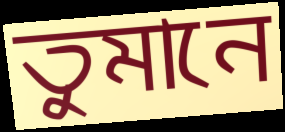
তুমানে